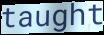
taught